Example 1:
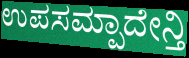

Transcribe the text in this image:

ಉಪಸಮ್ಪಾದೇನ್ತಿ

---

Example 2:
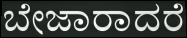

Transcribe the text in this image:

ಬೇಜಾರಾದರೆ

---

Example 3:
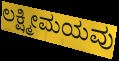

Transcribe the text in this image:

ಲಕ್ಷ್ಮೀಮಯವು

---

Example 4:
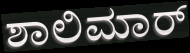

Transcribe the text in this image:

ಶಾಲಿಮಾರ್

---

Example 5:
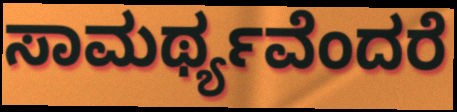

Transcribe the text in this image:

ಸಾಮರ್ಥ್ಯವೆಂದರೆ